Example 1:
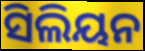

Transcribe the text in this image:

ସିଲିୟନ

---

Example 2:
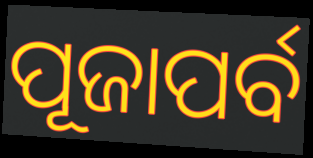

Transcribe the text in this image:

ପୂଜାପର୍ବ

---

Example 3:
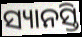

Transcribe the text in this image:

ସ୍ୟାନସ୍ତି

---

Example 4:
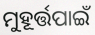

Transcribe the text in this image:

ମୁହୂର୍ତ୍ତପାଇଁ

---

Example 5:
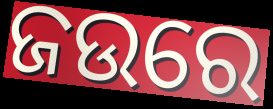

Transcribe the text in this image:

ଜଉରେ